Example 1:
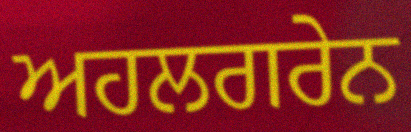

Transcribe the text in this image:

ਅਹਲਗਰੇਨ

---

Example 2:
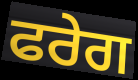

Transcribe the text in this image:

ਫਰੇਗ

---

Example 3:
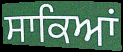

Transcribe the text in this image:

ਸਾਕਿਆਂ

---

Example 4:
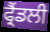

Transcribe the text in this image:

ਫ੍ਰੈਂਡਲੀ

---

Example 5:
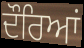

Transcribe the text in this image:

ਦੌਰਿਆਂ